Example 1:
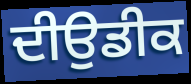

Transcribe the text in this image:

ਦੀਉਡੀਕ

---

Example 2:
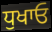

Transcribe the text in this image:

ਧੁਖਾਓ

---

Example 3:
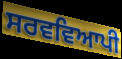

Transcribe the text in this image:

ਸਰਵਵਿਆਪੀ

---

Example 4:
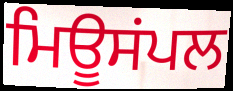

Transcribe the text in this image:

ਮਿਊਸਂਪਲ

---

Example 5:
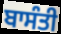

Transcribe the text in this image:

ਬਾਸੰਤੀ